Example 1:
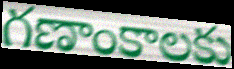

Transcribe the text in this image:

గణాంకాలకు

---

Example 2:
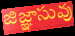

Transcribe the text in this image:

జిజ్ఞాసువు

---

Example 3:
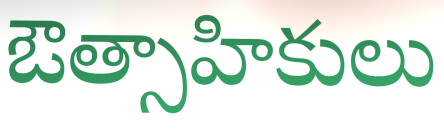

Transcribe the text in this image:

ఔత్సాహికులు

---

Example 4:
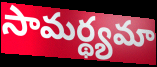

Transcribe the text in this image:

సామర్థ్యమా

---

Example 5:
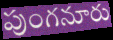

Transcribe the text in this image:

పుంగనూరు